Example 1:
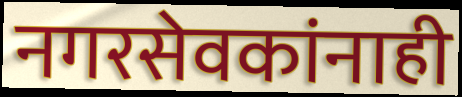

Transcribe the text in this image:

नगरसेवकांनाही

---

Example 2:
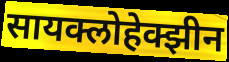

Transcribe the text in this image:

सायक्लोहेक्झीन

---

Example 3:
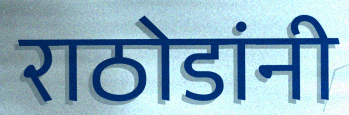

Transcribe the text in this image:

राठोडांनी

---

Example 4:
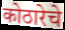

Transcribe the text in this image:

कोठारेचे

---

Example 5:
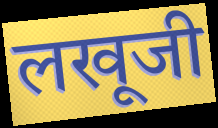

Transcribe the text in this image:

लखूजी